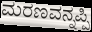
ಮರಣವನ್ನಪ್ಪಿ